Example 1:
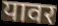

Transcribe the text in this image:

यावर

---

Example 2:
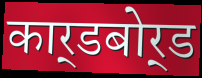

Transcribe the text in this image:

कार्डबोर्ड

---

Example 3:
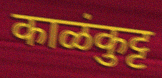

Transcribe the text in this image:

काळंकुट्ट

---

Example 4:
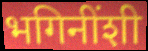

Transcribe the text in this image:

भगिनींशी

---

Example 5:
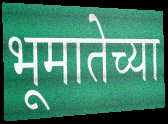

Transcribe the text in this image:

भूमातेच्या